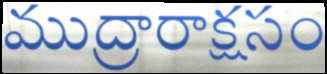
ముద్రారాక్షసం